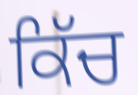
ਕਿੱਚ